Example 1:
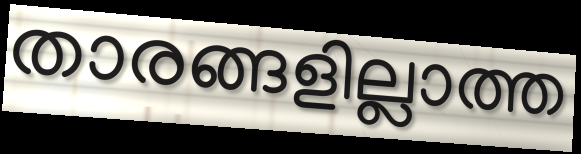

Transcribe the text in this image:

താരങ്ങളില്ലാത്ത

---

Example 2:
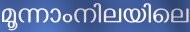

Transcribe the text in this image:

മൂന്നാംനിലയിലെ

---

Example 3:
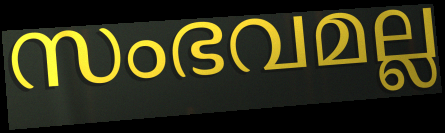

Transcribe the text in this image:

സംഭവമല്ല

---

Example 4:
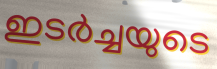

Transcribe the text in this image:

ഇടർച്ചയുടെ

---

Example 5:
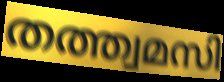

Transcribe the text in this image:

തത്ത്വമസി